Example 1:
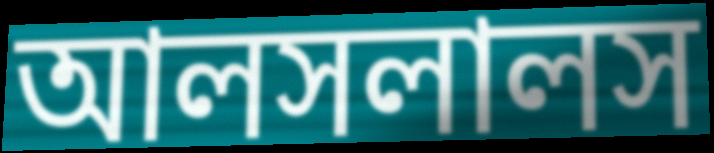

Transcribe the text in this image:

আলসলালস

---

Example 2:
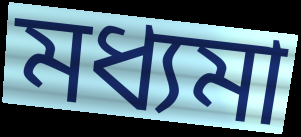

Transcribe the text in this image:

মধ্যমা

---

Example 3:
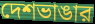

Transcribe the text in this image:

দেশভাঙার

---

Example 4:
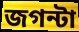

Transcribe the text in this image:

জগন্টা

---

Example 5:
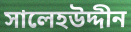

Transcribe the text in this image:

সালেহউদ্দীন